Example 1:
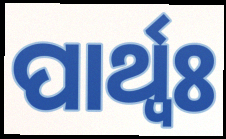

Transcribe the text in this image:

ପାର୍ଥ୍ବଃ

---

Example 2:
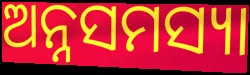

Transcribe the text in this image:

ଅନ୍ନସମସ୍ୟା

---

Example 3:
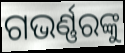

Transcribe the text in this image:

ଗଭର୍ଣ୍ଣରଙ୍କୁ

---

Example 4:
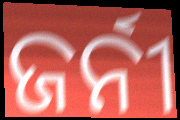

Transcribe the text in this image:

ଜର୍ନୀ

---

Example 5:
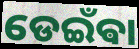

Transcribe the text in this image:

ଡେଇଁଵା